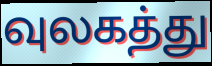
வுலகத்து